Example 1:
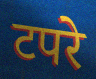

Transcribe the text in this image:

टपरे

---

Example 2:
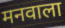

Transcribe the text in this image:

मनवाला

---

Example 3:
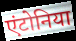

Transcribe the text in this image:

एंटोनिया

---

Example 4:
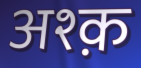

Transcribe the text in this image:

अश्क़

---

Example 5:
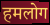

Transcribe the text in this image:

हमलोग